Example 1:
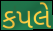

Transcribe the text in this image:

કપલે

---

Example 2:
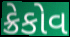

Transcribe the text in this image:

ક્રેકોવ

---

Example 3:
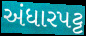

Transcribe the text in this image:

અંધારપટ્ટ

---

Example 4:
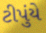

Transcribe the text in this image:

ટીપુંયે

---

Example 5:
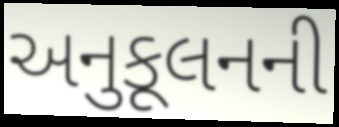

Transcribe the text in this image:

અનુકૂલનની